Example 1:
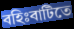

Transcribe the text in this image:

বহিঃবাটিতে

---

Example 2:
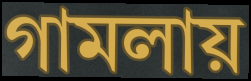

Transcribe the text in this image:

গামলায়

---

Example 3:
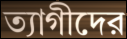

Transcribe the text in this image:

ত্যাগীদের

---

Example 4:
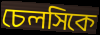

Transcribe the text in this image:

চেলসিকে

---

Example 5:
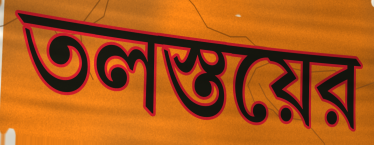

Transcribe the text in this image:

তলস্তয়ের